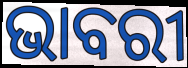
ଭାବରୀ